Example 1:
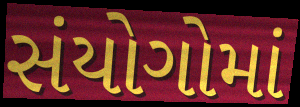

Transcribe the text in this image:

સંયોગોમાં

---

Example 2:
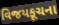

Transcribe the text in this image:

વિજયકૂચના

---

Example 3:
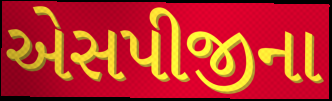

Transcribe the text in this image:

એસપીજીના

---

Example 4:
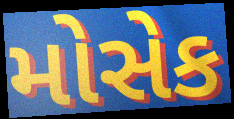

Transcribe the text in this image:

મોસેક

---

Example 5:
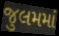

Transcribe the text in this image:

જુલમમાં